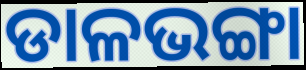
ଡାଳଭଙ୍ଗା